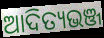
ଆଦିତ୍ୟଭଞ୍ଜ